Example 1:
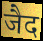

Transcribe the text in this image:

जैद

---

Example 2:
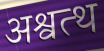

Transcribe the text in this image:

अश्वत्थ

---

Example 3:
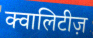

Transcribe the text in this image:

क्वालिटीज़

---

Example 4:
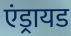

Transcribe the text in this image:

एंड्रायड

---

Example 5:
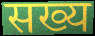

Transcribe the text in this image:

सख्य